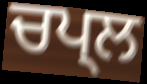
ਚਪ੍ਲ